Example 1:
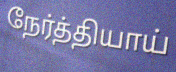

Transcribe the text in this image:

நேர்த்தியாய்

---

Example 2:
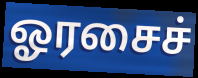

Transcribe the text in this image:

ஓரசைச்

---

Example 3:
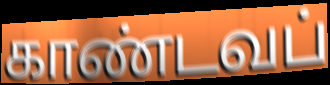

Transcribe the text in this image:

காண்டவப்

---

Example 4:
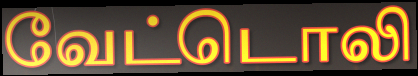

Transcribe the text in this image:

வேட்டொலி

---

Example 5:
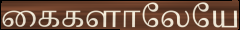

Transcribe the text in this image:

கைகளாலேயே